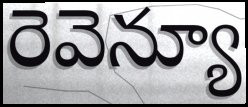
రెవెన్యూ